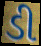
ડી